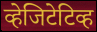
व्हेजिटेटिव्ह